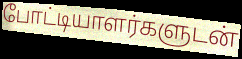
போட்டியாளர்களுடன்